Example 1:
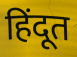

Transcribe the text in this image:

हिंदूत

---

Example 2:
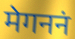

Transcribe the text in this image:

मेगननं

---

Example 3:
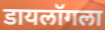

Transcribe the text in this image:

डायलॉगला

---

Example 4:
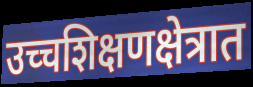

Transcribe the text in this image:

उच्चशिक्षणक्षेत्रात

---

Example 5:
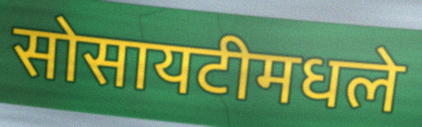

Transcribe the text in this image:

सोसायटीमधले